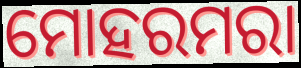
ମୋହରମରା